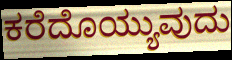
ಕರೆದೊಯ್ಯುವುದು